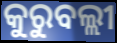
କୁରୁବଲ୍ଲୀ